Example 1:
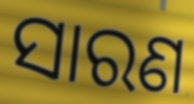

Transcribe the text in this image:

ସାରଣ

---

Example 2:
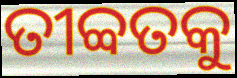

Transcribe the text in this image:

ତୀବ୍ବତକୁ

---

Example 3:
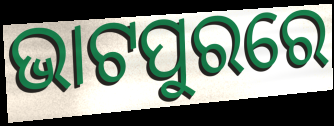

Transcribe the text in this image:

ଭାଟପୁରରେ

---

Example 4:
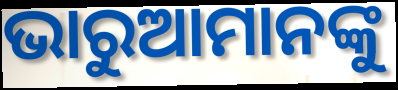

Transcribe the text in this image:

ଭାରୁଆମାନଙ୍କୁ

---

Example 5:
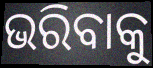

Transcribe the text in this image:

ଭରିବାକୁ